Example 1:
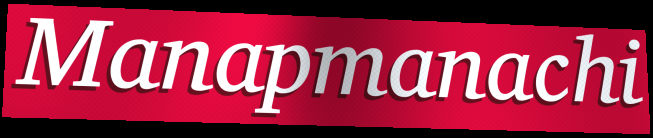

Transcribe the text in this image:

Manapmanachi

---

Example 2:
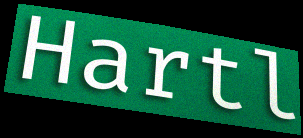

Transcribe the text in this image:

Hartl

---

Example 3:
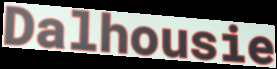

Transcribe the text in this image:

Dalhousie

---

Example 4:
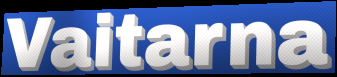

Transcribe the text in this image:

Vaitarna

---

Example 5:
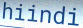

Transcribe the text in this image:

hiindi